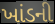
ખાંડની